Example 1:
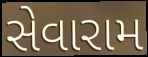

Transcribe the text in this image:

સેવારામ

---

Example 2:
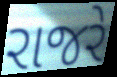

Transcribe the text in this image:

રાજરે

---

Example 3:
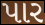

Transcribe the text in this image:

પાર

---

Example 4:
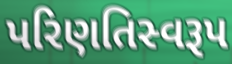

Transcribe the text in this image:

પરિણતિસ્વરૂપ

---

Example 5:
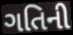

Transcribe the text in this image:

ગતિની